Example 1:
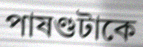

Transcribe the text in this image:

পাষণ্ডটাকে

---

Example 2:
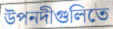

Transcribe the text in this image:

উপনদীগুলিতে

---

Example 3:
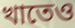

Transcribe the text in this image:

খাতেও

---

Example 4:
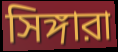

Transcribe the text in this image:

সিঙ্গারা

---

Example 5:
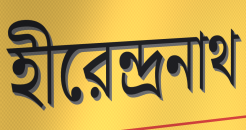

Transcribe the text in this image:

হীরেন্দ্রনাথ